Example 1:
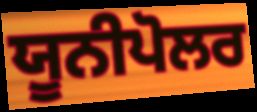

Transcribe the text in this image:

ਯੂਨੀਪੋਲਰ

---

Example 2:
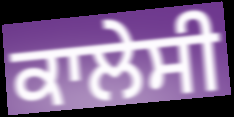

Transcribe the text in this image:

ਕਾਲੇਸੀ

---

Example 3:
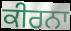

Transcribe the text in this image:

ਕੀਰਨਾ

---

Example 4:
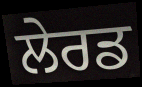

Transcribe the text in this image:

ਲੇਰਡ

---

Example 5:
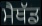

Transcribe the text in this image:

ਮੈਥੱਡ